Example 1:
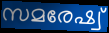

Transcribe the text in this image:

സമരേഷ്വ്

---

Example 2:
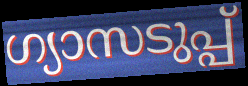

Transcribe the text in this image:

ഗ്യാസടുപ്പ്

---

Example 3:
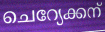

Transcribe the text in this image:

ചെറ്യേക്കന്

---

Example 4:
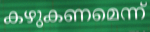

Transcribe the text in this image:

കഴുകണമെന്ന്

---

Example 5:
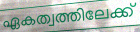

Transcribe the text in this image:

ഏകത്വത്തിലേക്ക്